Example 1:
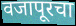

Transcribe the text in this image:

वजापूरचा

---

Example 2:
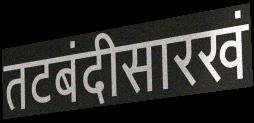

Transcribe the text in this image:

तटबंदीसारखं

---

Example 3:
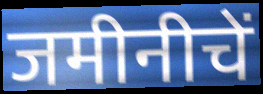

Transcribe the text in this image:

जमीनीचें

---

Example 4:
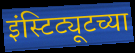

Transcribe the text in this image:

इंस्टिट्यूटच्या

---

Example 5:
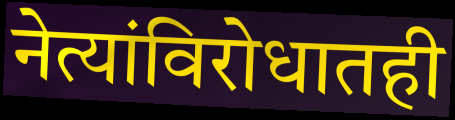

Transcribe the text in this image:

नेत्यांविरोधातही